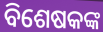
ବିଶେଷକଙ୍କ